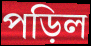
পড়িল